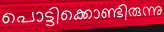
പൊട്ടിക്കൊണ്ടിരുന്നു